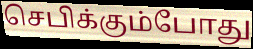
செபிக்கும்போது